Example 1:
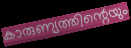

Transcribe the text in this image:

കാരുണ്യത്തിന്റെയും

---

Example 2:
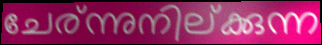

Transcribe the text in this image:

ചേര്ന്നുനില്ക്കുന്ന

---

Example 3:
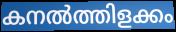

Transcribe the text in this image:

കനൽത്തിളക്കം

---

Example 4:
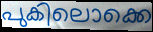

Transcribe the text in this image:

പുകിലൊക്കെ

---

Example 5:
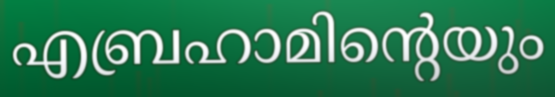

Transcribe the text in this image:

എബ്രഹാമിന്റെയും